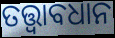
ତତ୍ତ୍ବାବଧାନ